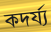
কদর্য্য